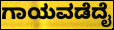
ಗಾಯವಡೆದೈ